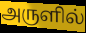
அருளில்